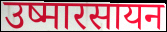
उष्मारसायन